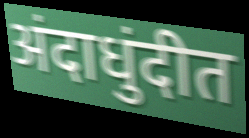
अंदाधुंदीत